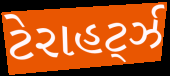
ટેરાહર્ટ્ઝ